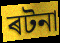
ৰটনা